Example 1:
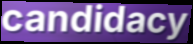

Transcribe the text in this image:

candidacy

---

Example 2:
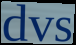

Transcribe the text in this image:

dvs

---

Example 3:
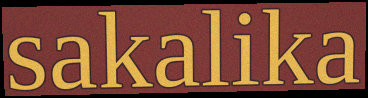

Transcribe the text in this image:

sakalika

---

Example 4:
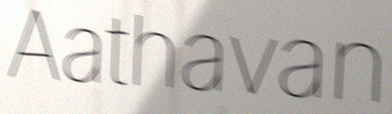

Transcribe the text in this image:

Aathavan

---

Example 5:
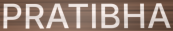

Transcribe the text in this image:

PRATIBHA